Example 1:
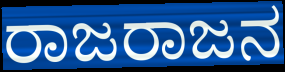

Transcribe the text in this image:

ರಾಜರಾಜನ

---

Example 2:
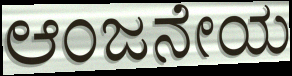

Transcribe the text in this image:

ಆಂಜನೇಯ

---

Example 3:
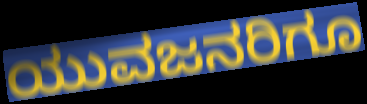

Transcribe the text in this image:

ಯುವಜನರಿಗೂ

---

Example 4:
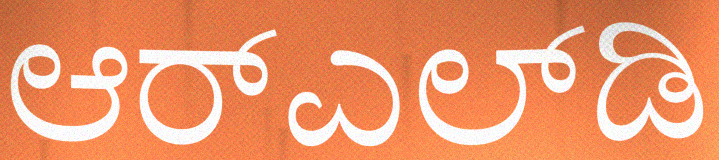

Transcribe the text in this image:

ಆರ್‌ಎಲ್‌ಡಿ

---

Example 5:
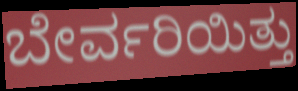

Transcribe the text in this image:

ಬೇರ್ವರಿಯಿತ್ತು